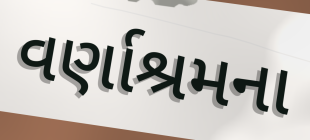
વર્ણાશ્રમના